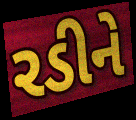
રડીને